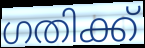
ഗതിക്ക്